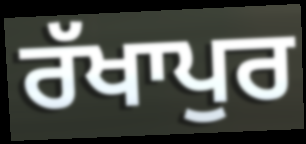
ਰੱਖਾਪੁਰ